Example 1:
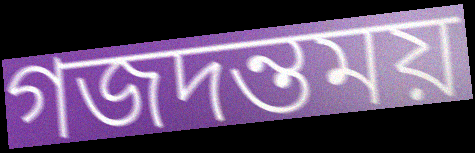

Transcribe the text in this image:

গজদন্তময়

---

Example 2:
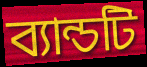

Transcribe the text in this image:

ব্যান্ডটি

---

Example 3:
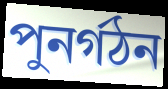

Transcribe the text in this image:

পুনর্গঠন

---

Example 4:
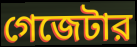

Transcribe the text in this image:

গেজেটার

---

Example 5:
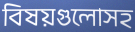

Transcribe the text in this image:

বিষয়গুলোসহ